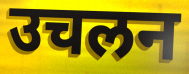
उचलन